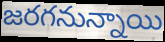
జరగనున్నాయి